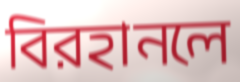
বিরহানলে